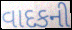
વાદકની